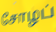
சோழப்